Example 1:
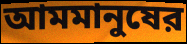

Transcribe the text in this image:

আমমানুষের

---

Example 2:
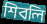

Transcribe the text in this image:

শিবলি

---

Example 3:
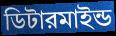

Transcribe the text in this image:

ডিটারমাইন্ড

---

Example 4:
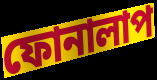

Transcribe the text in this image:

ফোনালাপ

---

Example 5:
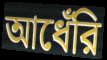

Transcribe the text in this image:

আধেঁরি